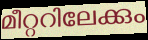
മീറ്ററിലേക്കും